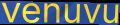
venuvu